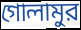
গোলামুর